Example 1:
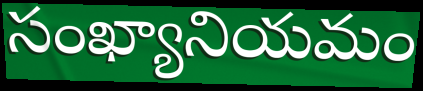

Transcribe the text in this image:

సంఖ్యానియమం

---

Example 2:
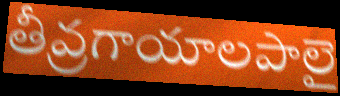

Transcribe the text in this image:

తీవ్రగాయాలపాలై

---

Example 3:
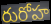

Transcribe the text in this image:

రురోహ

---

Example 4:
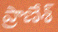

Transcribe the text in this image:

ప్రాణేశ్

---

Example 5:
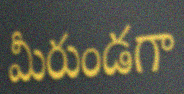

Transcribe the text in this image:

మీరుండగా